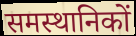
समस्थानिकों